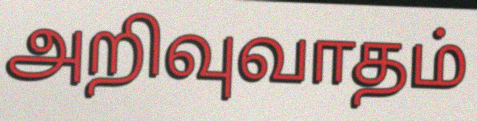
அறிவுவாதம்